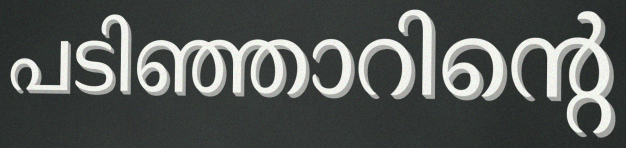
പടിഞ്ഞാറിന്റെ